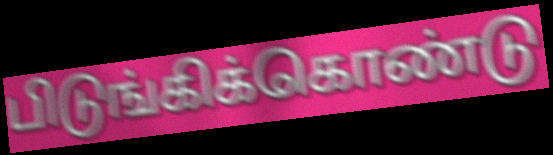
பிடுங்கிக்கொண்டு